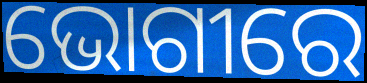
ଭୋଗୀରେ